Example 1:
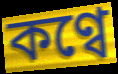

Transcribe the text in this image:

কণ্বে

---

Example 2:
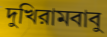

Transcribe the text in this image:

দুখিরামবাবু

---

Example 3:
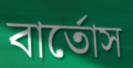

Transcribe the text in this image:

বার্তোস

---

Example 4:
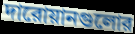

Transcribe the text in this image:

দারোয়ানগুলোর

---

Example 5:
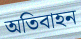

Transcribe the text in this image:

অতিবাহন